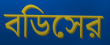
বডিসের